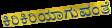
ಕಿರಿಕಿರಿಯಾಗುವಂತೆ